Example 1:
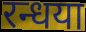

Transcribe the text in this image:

रन्धया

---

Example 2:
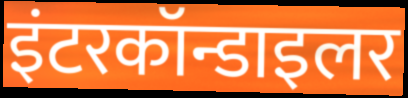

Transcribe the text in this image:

इंटरकॉन्डाइलर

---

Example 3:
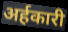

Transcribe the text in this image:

अर्हकारी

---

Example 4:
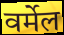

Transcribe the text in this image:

वर्मेल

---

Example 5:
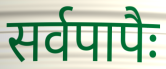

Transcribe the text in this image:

सर्वपापैः